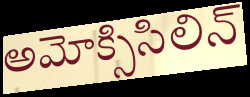
అమోక్సిసిలిన్